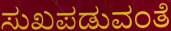
ಸುಖಪಡುವಂತೆ